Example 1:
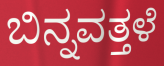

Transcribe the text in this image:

ಬಿನ್ನವತ್ತಳೆ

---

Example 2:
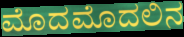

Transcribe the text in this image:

ಮೊದಮೊದಲಿನ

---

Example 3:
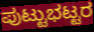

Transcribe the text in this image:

ಪುಟ್ಟುಭಟ್ಟರ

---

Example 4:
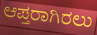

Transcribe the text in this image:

ಆಪ್ತರಾಗಿರಲು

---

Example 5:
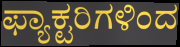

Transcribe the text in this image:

ಫ್ಯಾಕ್ಟರಿಗಳಿಂದ